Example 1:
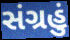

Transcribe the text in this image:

સંગ્રહું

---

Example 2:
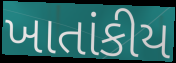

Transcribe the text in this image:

ખાતાંકીય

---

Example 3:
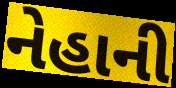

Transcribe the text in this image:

નેહાની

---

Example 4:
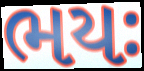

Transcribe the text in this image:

ભયઃ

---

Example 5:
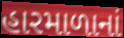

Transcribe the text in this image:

હારમાળાનાં